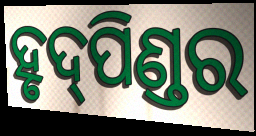
ହୃଦ୍‌ପିଣ୍ଡର